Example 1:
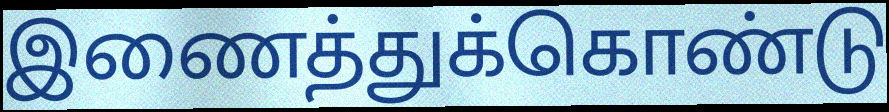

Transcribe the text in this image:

இணைத்துக்கொண்டு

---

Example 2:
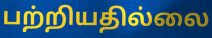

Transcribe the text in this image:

பற்றியதில்லை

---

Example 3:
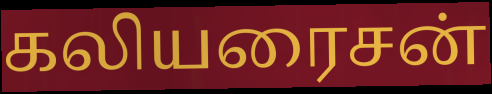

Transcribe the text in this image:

கலியரைசன்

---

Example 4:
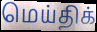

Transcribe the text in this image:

மெய்திக்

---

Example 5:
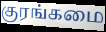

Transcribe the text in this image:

குரங்கமை